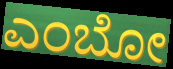
ಎಂಬೋ